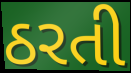
ઠરતી